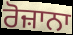
ਰੋਜ਼ਾਨਾ